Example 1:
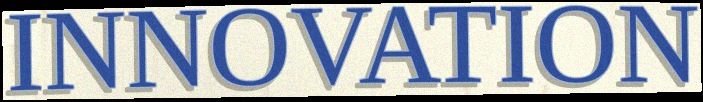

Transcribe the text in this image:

INNOVATION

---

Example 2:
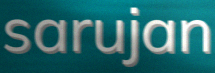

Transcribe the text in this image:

sarujan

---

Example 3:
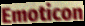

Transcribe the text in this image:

Emoticon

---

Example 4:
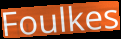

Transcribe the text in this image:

Foulkes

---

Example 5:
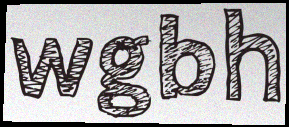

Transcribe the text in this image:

wgbh